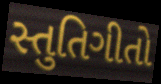
સ્તુતિગીતો